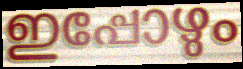
ഇപ്പോഴും